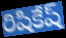
రిషికేష్